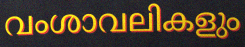
വംശാവലികളും